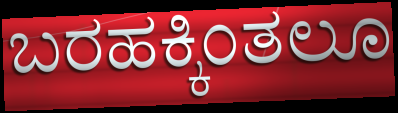
ಬರಹಕ್ಕಿಂತಲೂ